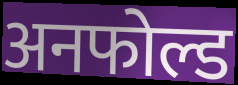
अनफोल्ड